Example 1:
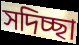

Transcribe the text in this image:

সদিচ্ছা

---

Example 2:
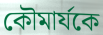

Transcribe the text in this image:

কৌমার্যকে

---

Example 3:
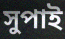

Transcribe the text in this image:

সুপাই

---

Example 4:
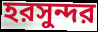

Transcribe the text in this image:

হরসুন্দর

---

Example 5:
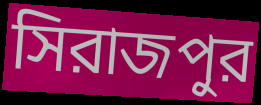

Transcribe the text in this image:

সিরাজপুর